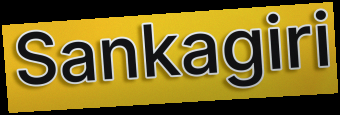
Sankagiri